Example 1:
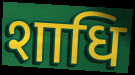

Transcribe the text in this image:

शाधि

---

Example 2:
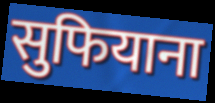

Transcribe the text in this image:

सुफियाना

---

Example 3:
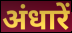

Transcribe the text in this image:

अंधारें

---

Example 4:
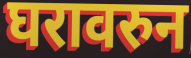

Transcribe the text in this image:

घरावरुन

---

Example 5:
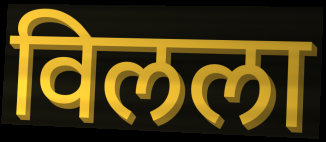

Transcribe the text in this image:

विलला